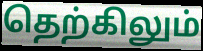
தெற்கிலும்